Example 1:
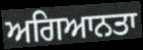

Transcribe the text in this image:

ਅਗਿਆਨਤਾ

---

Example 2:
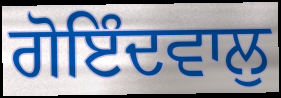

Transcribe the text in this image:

ਗੋਇੰਦਵਾਲੁ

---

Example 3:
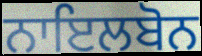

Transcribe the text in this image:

ਨਾਇਲਬੋਨ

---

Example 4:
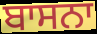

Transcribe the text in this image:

ਬਾਸਨਾ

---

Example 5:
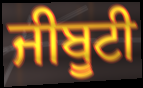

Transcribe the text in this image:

ਜੀਬੂਟੀ